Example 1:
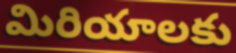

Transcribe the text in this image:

మిరియాలకు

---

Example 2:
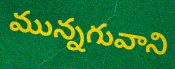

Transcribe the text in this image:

మున్నగువాని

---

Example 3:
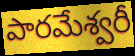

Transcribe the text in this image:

పారమేశ్వరీ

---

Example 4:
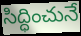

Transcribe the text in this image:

సిద్ధించునే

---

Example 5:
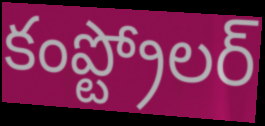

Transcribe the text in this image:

కంప్ట్రోలర్